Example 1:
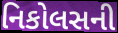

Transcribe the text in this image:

નિકોલસની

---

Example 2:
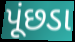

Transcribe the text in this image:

પૂંછડા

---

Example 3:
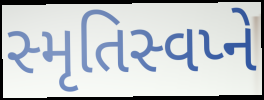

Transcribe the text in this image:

સ્મૃતિસ્વપ્ને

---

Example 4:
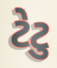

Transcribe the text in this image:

ટેટુ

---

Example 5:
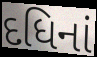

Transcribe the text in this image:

દધિનાં